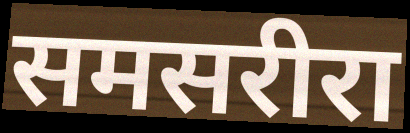
समसरीरा